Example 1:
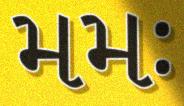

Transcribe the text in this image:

મમઃ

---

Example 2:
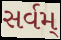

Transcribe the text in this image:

સર્વમ્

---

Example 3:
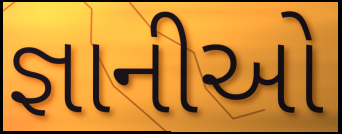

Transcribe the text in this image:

જ્ઞાનીઓ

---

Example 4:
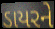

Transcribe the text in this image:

ડાયરને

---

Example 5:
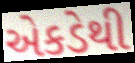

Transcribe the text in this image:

એકડેથી